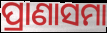
ପ୍ରାଣାସମା